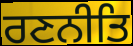
ਰਣਨੀਤਿ